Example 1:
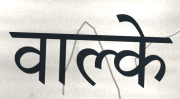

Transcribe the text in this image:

वाल्के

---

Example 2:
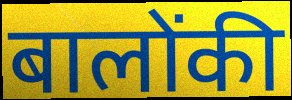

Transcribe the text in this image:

बालोंकी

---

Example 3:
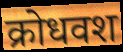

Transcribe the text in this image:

क्रोधवश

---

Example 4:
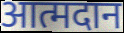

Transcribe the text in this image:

आत्मदान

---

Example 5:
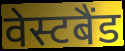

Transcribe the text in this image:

वेस्टबैंड